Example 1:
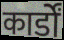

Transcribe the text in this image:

कार्डों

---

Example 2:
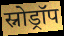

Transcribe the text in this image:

स्नोड्रॉप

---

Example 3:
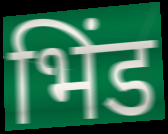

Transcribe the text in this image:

भिंड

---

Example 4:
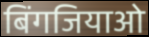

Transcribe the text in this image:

बिंगजियाओ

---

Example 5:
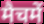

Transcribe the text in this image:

मैचमें